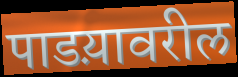
पाडय़ावरील